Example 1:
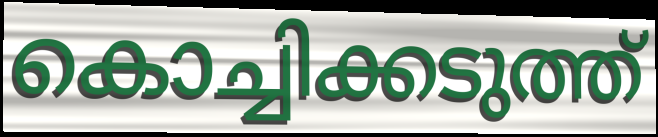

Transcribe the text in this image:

കൊച്ചിക്കടുത്ത്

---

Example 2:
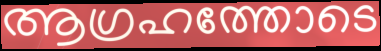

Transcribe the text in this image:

ആഗ്രഹത്തോടെ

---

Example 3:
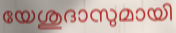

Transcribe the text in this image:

യേശുദാസുമായി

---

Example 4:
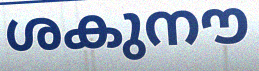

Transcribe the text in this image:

ശകുനൗ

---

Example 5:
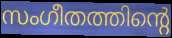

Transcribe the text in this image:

സംഗീതത്തിന്റെ